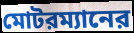
মোটরম্যানের